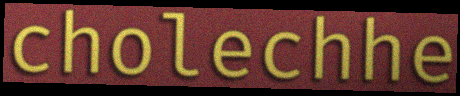
cholechhe